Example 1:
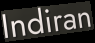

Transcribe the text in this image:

Indiran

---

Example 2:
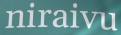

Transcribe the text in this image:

niraivu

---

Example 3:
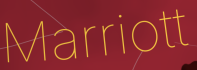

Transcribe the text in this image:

Marriott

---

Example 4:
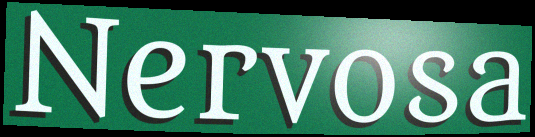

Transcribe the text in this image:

Nervosa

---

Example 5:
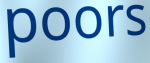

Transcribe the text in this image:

poors